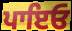
ਪਾਇਓ